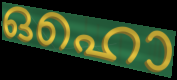
ഒഹൊ